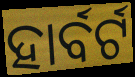
ହାର୍ବର୍ଟ